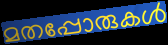
മതപ്പോരുകൾ